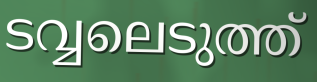
ടവ്വലെടുത്ത്